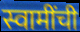
स्वामींची